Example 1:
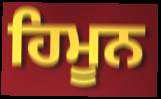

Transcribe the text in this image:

ਹਿਮੂਨ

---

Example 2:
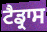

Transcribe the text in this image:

ਟੈਡ੍ਰਾਸ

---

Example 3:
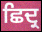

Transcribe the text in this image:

ਛਿਦ੍ਰ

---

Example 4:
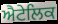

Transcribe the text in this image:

ਐਟੇਲਿਕ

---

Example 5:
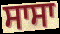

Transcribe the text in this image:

ਸਾਸਾ